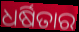
ଧର୍ଷିତାର